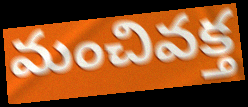
మంచివక్త